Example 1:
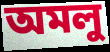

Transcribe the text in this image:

অমলু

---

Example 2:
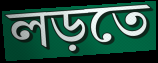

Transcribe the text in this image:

লড়তে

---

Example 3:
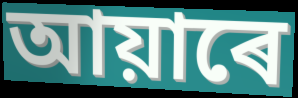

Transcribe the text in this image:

আয়াৰে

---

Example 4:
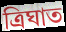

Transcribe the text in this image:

ত্ৰিঘাত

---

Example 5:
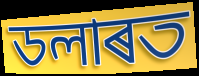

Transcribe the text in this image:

ডলাৰত